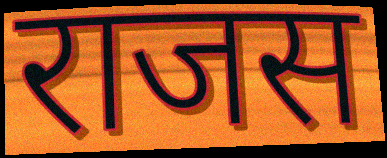
राजस